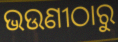
ଭଉଣୀଠାରୁ